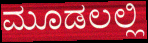
ಮೂಡಲಲ್ಲಿ